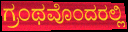
ಗ್ರಂಥವೊಂದರಲ್ಲಿ